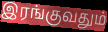
இரங்குவதும்